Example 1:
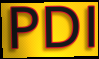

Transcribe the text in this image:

PDI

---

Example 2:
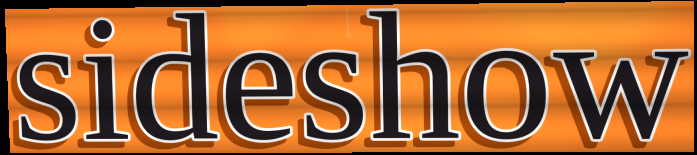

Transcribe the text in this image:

sideshow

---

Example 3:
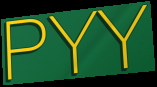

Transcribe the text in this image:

PYY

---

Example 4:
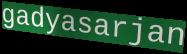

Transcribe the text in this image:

gadyasarjan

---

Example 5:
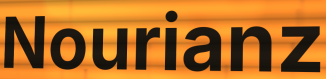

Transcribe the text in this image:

Nourianz